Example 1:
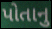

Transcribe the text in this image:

પોતાનુ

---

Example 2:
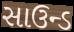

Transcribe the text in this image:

સાઉન્ડ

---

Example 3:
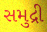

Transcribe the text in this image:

સમુદ્રી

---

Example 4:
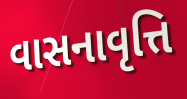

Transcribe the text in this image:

વાસનાવૃત્તિ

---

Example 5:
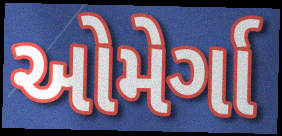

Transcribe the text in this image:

ઓમેર્ગા